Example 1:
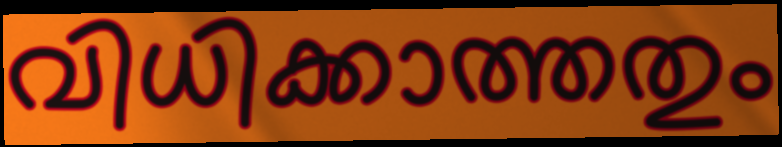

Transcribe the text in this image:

വിധിക്കാത്തതും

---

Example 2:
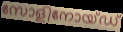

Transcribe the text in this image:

സോളിനോയ്ഡ്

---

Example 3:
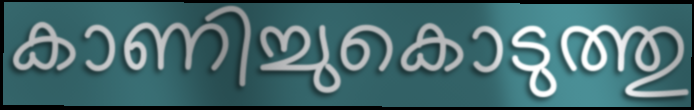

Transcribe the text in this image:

കാണിച്ചുകൊടുത്തു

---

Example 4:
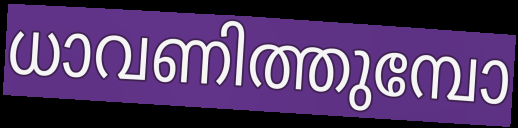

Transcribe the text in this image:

ധാവണിത്തുമ്പോ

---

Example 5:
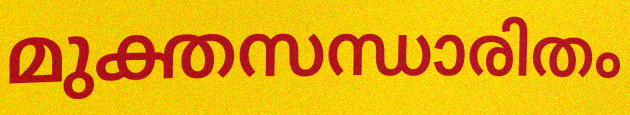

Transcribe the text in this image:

മുക്തസന്ധാരിതം